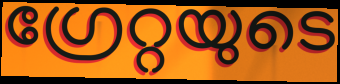
ഗ്രേറ്റയുടെ